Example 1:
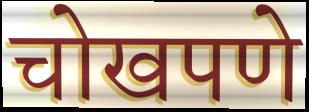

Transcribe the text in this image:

चोखपणे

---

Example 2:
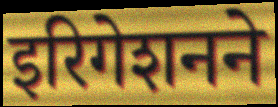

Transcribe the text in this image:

इरिगेशनने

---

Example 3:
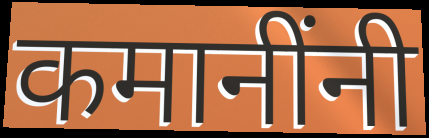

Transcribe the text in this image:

कमानींनी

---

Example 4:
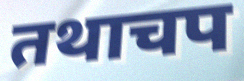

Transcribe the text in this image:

तथाचप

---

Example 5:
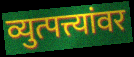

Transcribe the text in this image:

व्युत्पत्त्यांवर